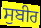
ਸੁਬੀਰ